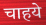
चाहये